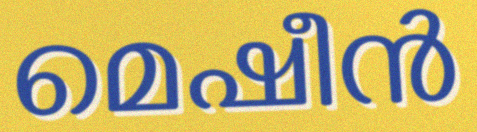
മെഷീൻ